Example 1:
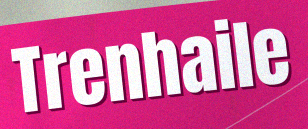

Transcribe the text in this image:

Trenhaile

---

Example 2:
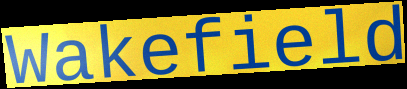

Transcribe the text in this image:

Wakefield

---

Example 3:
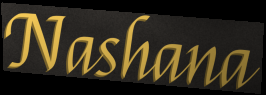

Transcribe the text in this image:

Nashana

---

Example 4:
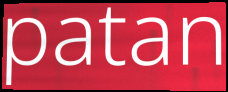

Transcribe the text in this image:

patan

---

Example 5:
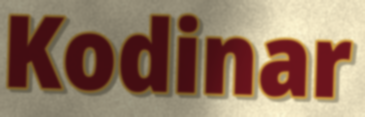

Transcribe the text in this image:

Kodinar